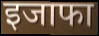
इजाफा